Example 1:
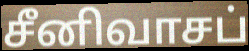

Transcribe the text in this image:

சீனிவாசப்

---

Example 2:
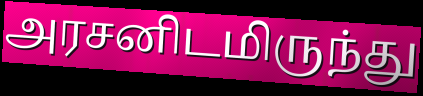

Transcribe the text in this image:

அரசனிடமிருந்து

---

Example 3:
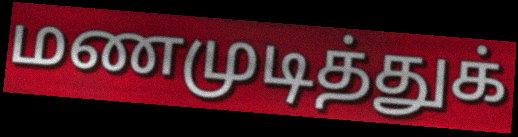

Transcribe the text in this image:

மணமுடித்துக்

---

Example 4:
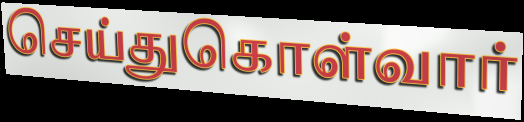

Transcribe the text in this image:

செய்துகொள்வார்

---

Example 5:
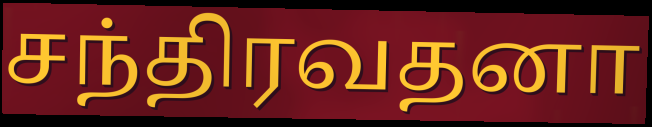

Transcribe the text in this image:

சந்திரவதனா